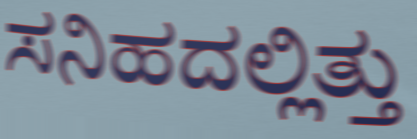
ಸನಿಹದಲ್ಲಿತ್ತು